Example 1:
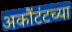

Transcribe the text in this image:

अकौंटंटच्या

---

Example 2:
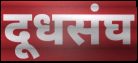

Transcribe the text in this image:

दूधसंघ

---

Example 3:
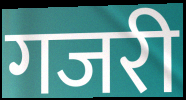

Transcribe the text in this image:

गजरी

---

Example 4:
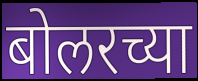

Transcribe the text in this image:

बोलरच्या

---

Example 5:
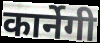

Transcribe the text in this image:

कार्नेगी